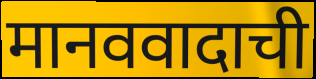
मानववादाची